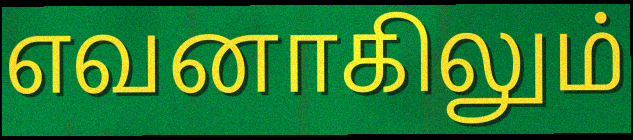
எவனாகிலும்